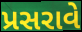
પ્રસરાવે